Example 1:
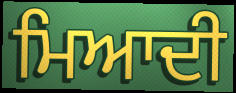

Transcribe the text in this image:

ਮਿਆਦੀ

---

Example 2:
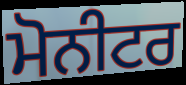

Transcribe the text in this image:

ਮੋਨੀਟਰ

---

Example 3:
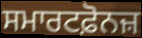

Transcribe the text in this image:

ਸਮਾਰਟਫ਼ੋਨਜ਼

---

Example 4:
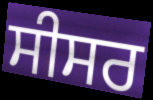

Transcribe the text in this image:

ਸੀਸਰ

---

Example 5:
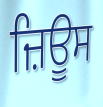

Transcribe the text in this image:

ਜ਼ਿਊਸ